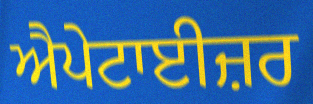
ਐਪੇਟਾਈਜ਼ਰ